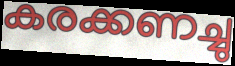
കരക്കണച്ചു